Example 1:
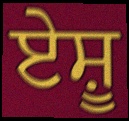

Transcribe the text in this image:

ਏਸ਼ੂ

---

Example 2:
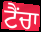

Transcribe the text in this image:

ਟੈਂਚਾ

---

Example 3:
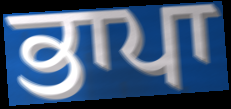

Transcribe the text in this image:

ਭਾਪਾ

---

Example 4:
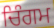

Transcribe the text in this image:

ਚਿੰਗਮ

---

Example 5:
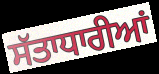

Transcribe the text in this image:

ਸੱਤਾਧਾਰੀਆਂ